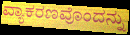
ವ್ಯಾಕರಣವೊಂದನ್ನು